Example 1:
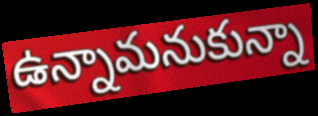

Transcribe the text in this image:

ఉన్నామనుకున్నా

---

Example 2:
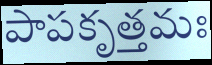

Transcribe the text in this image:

పాపకృత్తమః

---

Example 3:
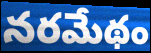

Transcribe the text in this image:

నరమేథం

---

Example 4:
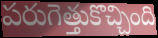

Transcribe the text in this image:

పరుగెత్తుకొచ్చింది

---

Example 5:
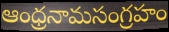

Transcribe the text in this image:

ఆంధ్రనామసంగ్రహం